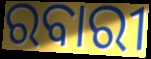
ରବାରୀ